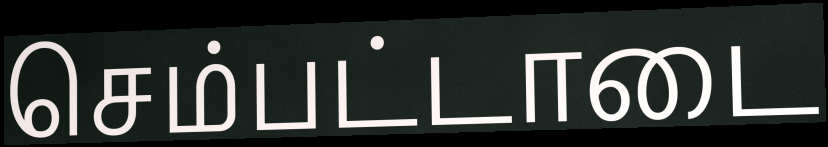
செம்பட்டாடை